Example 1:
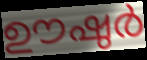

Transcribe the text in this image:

ഊഷുർ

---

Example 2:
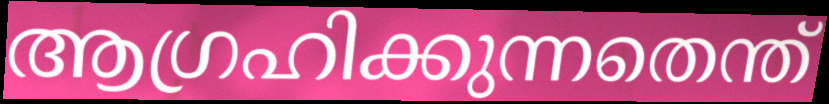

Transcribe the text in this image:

ആഗ്രഹിക്കുന്നതെന്ത്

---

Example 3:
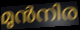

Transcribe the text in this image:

മുൻനിര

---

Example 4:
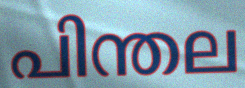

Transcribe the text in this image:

പിന്തല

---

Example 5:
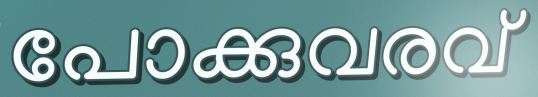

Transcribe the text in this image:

പോക്കുവരവ്